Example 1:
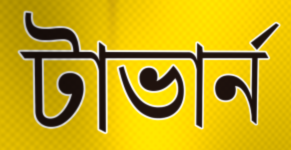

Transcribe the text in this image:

টাভার্ন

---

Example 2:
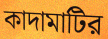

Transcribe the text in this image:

কাদামাটির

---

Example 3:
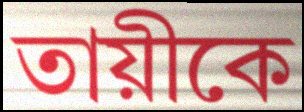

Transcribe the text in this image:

তায়ীকে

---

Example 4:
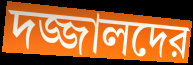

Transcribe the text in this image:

দজ্জালদের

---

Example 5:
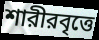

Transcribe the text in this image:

শারীরবৃত্তে